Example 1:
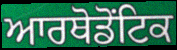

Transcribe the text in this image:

ਆਰਥੋਡੋਂਟਿਕ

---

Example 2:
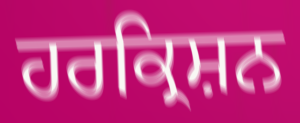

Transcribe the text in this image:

ਹਰਕ੍ਰਿਸ਼ਨ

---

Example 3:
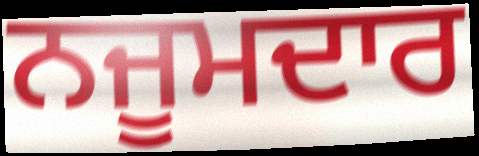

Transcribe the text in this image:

ਨਜੂਮਦਾਰ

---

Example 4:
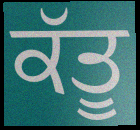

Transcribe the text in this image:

ਕੱਤੂ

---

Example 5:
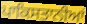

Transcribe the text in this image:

ਪਾਕਿਸਤਾਨੀਆਂ